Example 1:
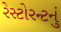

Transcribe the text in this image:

રેસ્ટોરન્ટનું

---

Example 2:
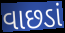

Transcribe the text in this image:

વાછડાં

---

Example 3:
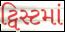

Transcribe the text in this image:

ટ્વિસ્ટમાં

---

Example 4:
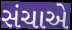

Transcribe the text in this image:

સંચાએ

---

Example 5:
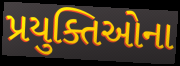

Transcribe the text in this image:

પ્રયુક્તિઓના